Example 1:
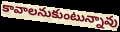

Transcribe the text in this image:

కావాలనుకుంటున్నావు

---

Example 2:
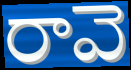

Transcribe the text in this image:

రావె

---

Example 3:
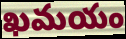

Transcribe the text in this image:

ఖమయం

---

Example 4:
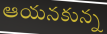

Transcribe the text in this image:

ఆయనకున్న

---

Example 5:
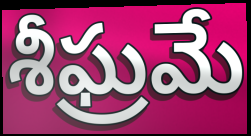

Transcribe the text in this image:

శీఘ్రమే